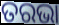
ତରଭା